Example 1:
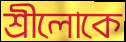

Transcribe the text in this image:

শ্রীলোকে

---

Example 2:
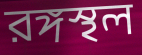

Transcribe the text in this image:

রঙ্গস্থল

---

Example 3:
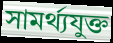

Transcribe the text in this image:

সামর্থ্যযুক্ত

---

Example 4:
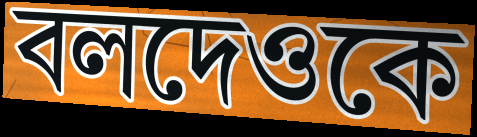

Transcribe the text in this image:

বলদেওকে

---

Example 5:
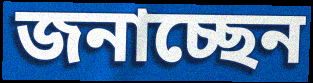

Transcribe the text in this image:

জনাচ্ছেন